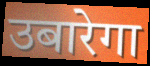
उबारेगा